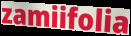
zamiifolia